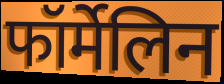
फॉर्मेलिन